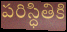
పరిస్ధితికి